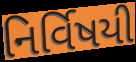
નિર્વિષયી